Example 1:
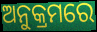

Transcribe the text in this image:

ଅନୁକ୍ରମରେ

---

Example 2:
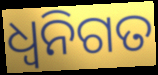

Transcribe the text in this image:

ଧ୍ୱନିଗତ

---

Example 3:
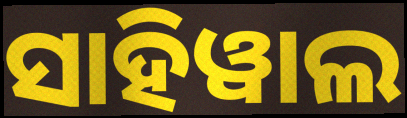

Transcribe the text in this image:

ସାହିୱାଲ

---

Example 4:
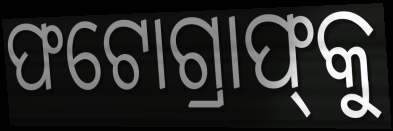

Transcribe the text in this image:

ଫଟୋଗ୍ରାଫ୍‌କୁ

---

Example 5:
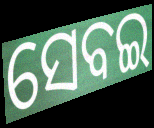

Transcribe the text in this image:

ସେବଇ